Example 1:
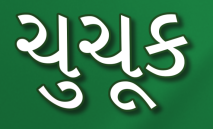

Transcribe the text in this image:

ચુચૂક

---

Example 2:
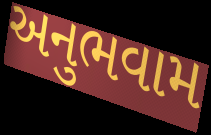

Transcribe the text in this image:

અનુભવામ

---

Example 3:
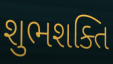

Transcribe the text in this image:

શુભશક્તિ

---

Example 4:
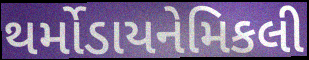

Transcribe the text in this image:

થર્મોડાયનેમિકલી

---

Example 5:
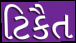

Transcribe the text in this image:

ટિકૈત